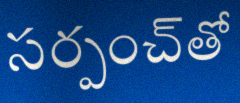
సర్పంచ్‌తో